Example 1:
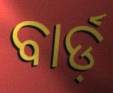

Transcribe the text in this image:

ବାର୍ଡ଼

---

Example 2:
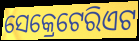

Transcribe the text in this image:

ସେକ୍ରେଟେରିଏଟ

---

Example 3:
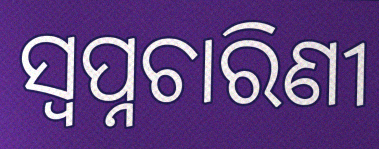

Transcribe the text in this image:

ସ୍ୱପ୍ନଚାରିଣୀ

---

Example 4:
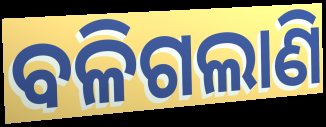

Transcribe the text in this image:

ବଳିଗଲାଣି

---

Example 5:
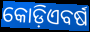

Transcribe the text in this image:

କୋଡ଼ିଏବର୍ଷ